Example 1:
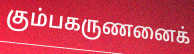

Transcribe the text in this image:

கும்பகருணனைக்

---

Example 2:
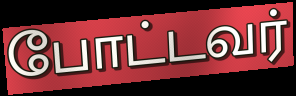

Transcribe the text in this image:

போட்டவர்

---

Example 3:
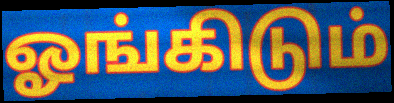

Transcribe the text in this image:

ஓங்கிடும்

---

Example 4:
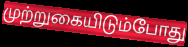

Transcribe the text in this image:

முற்றுகையிடும்போது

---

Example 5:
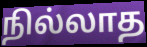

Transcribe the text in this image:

நில்லாத